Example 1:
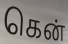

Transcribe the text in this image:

கென்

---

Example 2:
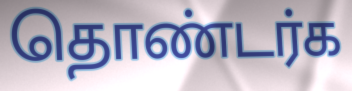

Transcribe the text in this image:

தொண்டர்க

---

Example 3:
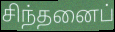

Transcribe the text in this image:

சிந்தனைப்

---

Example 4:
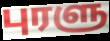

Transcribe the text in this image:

புரளு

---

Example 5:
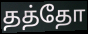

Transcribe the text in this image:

தத்தோ